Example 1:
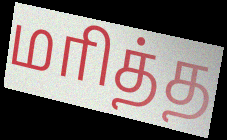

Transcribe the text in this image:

மரித்த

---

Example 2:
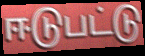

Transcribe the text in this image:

ஈடுபட்டு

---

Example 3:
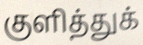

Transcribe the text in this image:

குளித்துக்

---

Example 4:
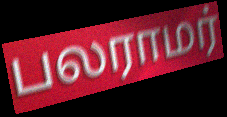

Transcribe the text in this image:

பலராமர்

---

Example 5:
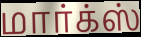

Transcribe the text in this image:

மார்க்ஸ்